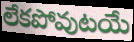
లేకపోవుటయే